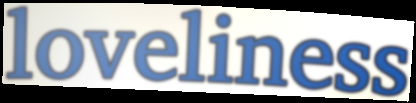
loveliness